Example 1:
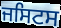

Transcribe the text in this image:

ਜਸਿਟਸ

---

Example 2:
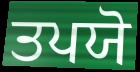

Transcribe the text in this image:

ਤਪਯੋ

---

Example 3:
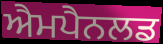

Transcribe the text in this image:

ਐਮਪੈਨਲਡ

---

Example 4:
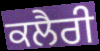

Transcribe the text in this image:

ਕਲੈਰੀ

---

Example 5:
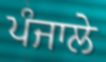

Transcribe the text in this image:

ਪੰਜਾਲੇ